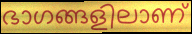
ഭാഗങ്ങളിലാണ്